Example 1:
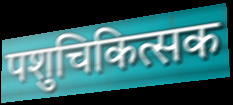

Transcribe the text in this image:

पशुचिकित्सक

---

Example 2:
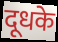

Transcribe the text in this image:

दूधके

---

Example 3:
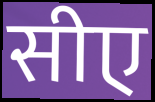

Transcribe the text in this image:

सीए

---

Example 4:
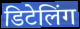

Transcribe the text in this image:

डिटेलिंग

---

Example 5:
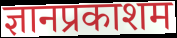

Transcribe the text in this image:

ज्ञानप्रकाशम